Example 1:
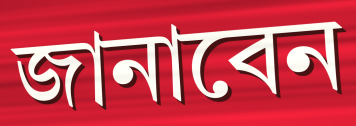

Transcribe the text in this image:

জানাবেন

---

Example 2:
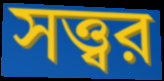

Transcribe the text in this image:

সত্ত্বর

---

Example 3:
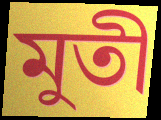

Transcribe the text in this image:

মুতী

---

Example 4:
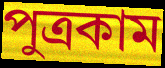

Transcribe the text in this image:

পুত্রকাম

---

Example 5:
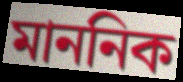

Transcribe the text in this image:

মাননিক